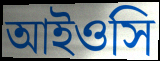
আইওসি